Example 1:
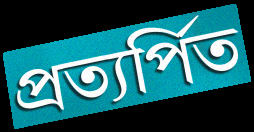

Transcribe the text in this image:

প্রত্যর্পিত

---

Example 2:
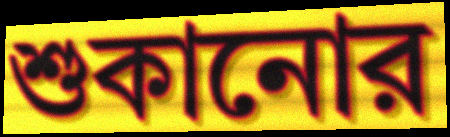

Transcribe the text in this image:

শুকানোর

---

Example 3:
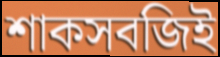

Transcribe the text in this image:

শাকসবজিই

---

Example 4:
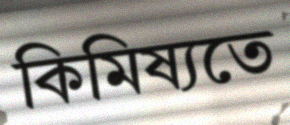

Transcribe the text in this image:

কিমিষ্যতে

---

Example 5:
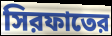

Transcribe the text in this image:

সিরফাতের